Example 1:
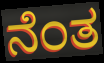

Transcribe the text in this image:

ನೆಂತ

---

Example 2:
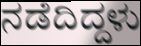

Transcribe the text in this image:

ನಡೆದಿದ್ದಳು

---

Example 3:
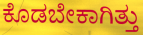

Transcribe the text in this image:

ಕೊಡಬೇಕಾಗಿತ್ತು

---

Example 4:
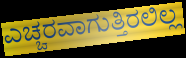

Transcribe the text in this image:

ಎಚ್ಚರವಾಗುತ್ತಿರಲಿಲ್ಲ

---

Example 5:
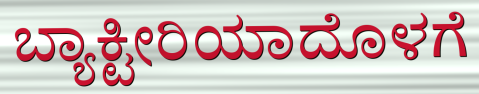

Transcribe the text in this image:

ಬ್ಯಾಕ್ಟೀರಿಯಾದೊಳಗೆ